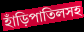
হাঁড়িপাতিলসহ